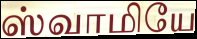
ஸ்வாமியே